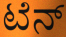
ಟೆನ್